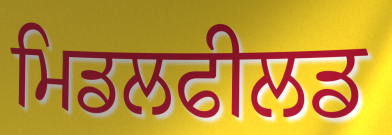
ਮਿਡਲਫੀਲਡ